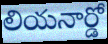
లియనార్డో